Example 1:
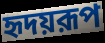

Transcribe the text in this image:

হৃদয়রূপ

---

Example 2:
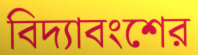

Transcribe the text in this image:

বিদ্যাবংশের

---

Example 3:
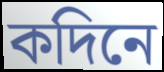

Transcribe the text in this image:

কদিনে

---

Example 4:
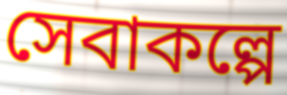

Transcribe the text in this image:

সেবাকল্পে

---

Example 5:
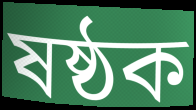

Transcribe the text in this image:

ষষ্ঠক